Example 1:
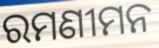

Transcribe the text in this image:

ରମଣୀମନ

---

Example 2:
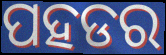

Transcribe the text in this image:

ପହଡର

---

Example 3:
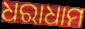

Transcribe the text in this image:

ଧରାଧାମ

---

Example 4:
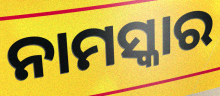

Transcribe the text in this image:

ନାମସ୍କାର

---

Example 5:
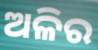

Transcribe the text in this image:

ଅଳିର